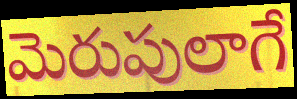
మెరుపులాగే